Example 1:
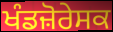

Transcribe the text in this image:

ਖੰਡਜ਼ੋਰੇਸਕ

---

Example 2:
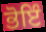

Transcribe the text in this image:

ਭੋਇੰ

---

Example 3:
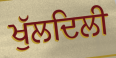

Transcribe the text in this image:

ਖੁੱਲਦਿਲੀ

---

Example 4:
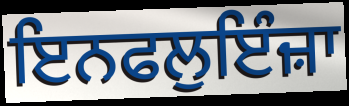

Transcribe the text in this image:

ਇਨਫਲੁਇੰਜ਼ਾ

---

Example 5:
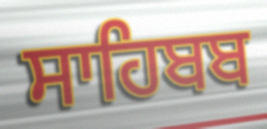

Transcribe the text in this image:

ਸਾਹਿਬਬ